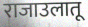
राजाउलातू